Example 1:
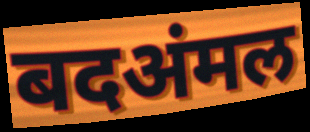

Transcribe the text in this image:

बदअंमल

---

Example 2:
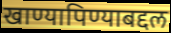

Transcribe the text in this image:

खाण्यापिण्याबद्दल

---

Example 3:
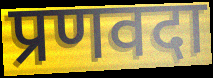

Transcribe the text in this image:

प्रणवदा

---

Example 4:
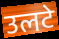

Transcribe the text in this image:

उलटे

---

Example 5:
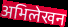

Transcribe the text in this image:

अभिलेखन